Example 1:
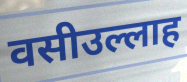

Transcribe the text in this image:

वसीउल्लाह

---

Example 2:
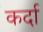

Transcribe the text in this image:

कर्दा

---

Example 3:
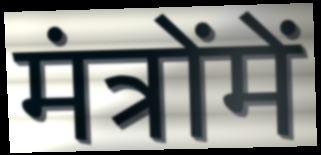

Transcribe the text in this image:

मंत्रोंमें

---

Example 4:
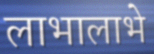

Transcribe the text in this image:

लाभालाभे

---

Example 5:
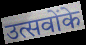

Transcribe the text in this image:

उत्सवोंके